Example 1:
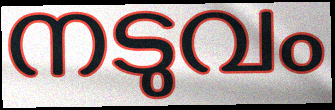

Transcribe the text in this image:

നടുവം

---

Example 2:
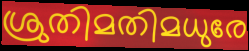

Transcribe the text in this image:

ശ്രുതിമതിമധുരേ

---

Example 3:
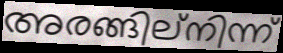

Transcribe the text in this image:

അരങ്ങില്നിന്ന്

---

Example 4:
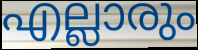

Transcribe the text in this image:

എല്ലാരും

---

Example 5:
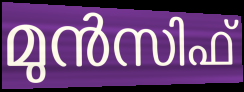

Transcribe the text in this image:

മുൻസിഫ്